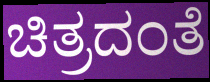
ಚಿತ್ರದಂತೆ